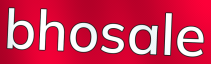
bhosale